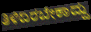
ತಿಳಿದಿರಬೇಕಾದ್ದು